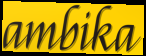
ambika